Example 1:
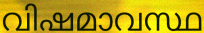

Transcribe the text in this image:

വിഷമാവസ്ഥ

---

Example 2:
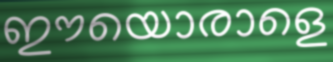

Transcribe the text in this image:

ഈയൊരാളെ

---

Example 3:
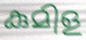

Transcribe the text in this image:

കുമിള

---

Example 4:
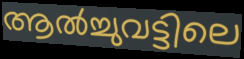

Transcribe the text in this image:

ആൽച്ചുവട്ടിലെ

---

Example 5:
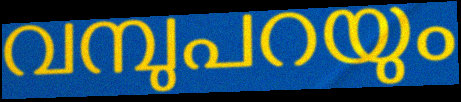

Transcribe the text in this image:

വമ്പുപറയും